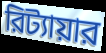
রিট্যায়ার